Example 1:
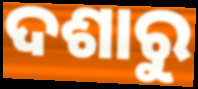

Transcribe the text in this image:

ଦଶାରୁ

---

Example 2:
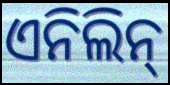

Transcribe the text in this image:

ଏନିଲିନ୍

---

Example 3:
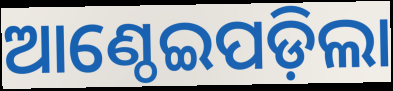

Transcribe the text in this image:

ଆଣ୍ଠେଇପଡ଼ିଲା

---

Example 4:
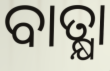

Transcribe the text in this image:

ବାତ୍କ୍ଷା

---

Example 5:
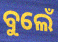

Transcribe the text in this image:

ବୁଲେଁ